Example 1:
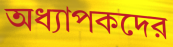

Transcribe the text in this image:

অধ্যাপকদের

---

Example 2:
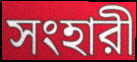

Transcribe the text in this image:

সংহারী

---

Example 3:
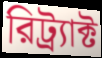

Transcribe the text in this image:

রিট্র্যাক্ট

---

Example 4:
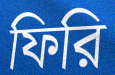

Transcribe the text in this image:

ফিরি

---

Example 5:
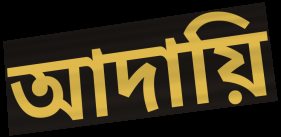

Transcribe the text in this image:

আদায়ি